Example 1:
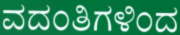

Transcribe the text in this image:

ವದಂತಿಗಳಿಂದ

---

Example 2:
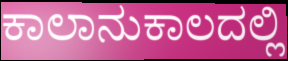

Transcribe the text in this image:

ಕಾಲಾನುಕಾಲದಲ್ಲಿ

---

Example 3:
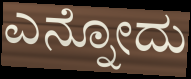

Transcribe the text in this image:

ಎನ್ನೋದು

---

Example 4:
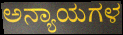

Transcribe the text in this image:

ಅನ್ಯಾಯಗಳ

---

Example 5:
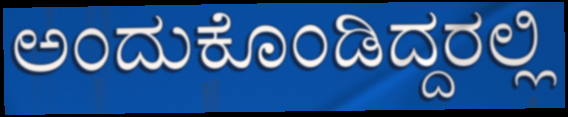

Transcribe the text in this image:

ಅಂದುಕೊಂಡಿದ್ದರಲ್ಲಿ